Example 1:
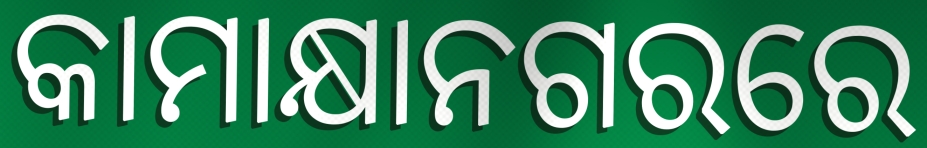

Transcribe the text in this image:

କାମାକ୍ଷାନଗରରେ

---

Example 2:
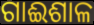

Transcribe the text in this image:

ଗାଈଶାଳ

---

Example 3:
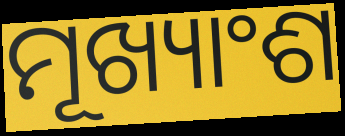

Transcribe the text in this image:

ମୂଖ୍ୟାଂଶ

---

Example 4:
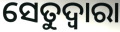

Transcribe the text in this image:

ସେତୁଦ୍ୱାରା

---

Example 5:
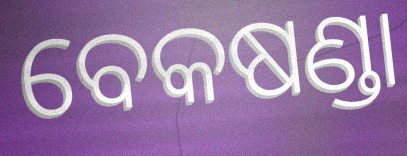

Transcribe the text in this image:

ବେକଷଣ୍ଡା